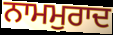
ਨਾਮਮੁਰਾਦ